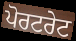
ਪੋਰਟਰੇਟ